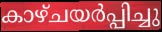
കാഴ്ചയർപ്പിച്ചു